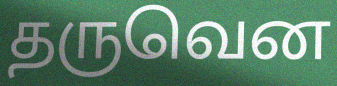
தருவென